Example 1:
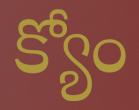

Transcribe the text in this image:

క్యోం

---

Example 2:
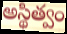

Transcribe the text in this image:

అస్థిత్వం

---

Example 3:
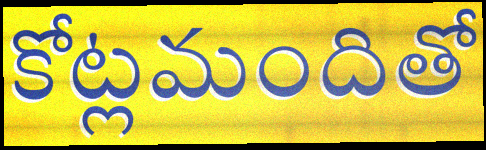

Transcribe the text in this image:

కోట్లమందితో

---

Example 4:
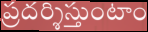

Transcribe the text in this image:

ప్రదర్శిస్తుంటాం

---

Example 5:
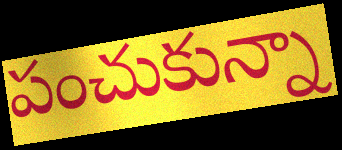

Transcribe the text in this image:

పంచుకున్నా